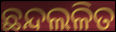
ଛନ୍ଦଲଳିତ